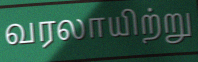
வரலாயிற்று